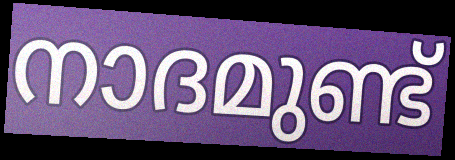
നാദമുണ്ട്